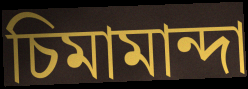
চিমামান্দা